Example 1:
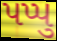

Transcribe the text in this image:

પપ્પુ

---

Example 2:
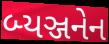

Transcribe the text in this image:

બ્યઞ્જનેન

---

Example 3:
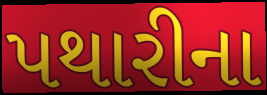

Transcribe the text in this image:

પથારીના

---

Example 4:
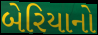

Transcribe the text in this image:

બેરિયાનો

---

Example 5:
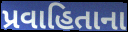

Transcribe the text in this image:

પ્રવાહિતાના